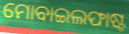
ମୋବାଇଲଫାଷ୍ଟ